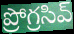
ప్రోగ్రసివ్